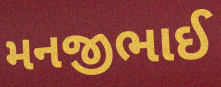
મનજીભાઈ